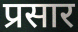
प्रसार